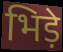
भिड़े